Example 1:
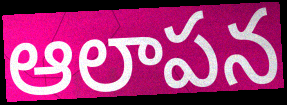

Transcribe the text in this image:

ఆలాపన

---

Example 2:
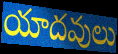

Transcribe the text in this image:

యాదవులు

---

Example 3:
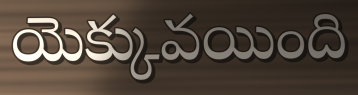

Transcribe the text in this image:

యెక్కువయింది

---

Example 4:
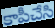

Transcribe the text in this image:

కాపీచేసి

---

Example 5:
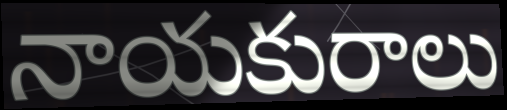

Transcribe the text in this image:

నాయకురాలు